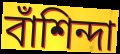
বাঁশিন্দা